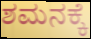
ಶಮನಕ್ಕೆ